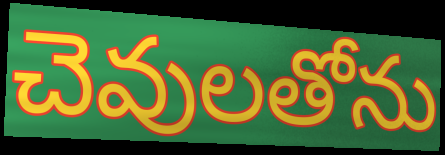
చెవులతోను